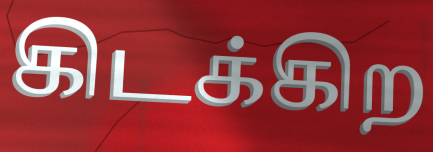
கிடக்கிற